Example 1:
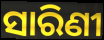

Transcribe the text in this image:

ସାରିଣୀ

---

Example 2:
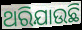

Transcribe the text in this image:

ଥରିଯାଉଛି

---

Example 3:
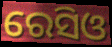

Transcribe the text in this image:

ରେସିଓ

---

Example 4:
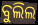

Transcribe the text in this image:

ବୁଲିଲ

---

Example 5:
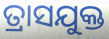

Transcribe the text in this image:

ତ୍ରାସଯୁକ୍ତ